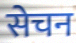
सेचन